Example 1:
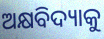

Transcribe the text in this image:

ଅକ୍ଷବିଦ୍ୟାକୁ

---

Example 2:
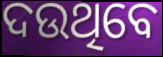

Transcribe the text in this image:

ଦଉଥିବେ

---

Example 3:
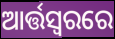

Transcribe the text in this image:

ଆର୍ତ୍ତସ୍ଵରରେ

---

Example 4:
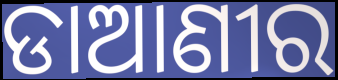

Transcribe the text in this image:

ଡାଆଣୀର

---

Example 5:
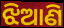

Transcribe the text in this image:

ଝିଆଣି